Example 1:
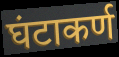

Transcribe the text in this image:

घंटाकर्ण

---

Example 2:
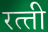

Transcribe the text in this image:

रत्‍ती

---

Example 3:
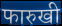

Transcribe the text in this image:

फारुखी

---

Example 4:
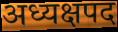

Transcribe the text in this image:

अध्यक्षपद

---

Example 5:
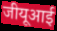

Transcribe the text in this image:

जीयूआई